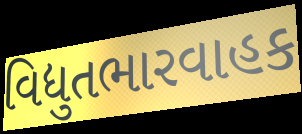
વિદ્યુતભારવાહક